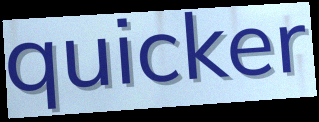
quicker